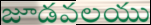
జూడవలయు